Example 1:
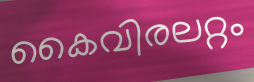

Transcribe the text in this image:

കൈവിരലറ്റം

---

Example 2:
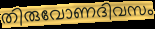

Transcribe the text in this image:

തിരുവോണദിവസം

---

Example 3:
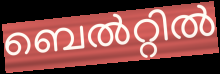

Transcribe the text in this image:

ബെൽറ്റിൽ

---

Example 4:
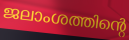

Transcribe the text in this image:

ജലാംശത്തിന്റെ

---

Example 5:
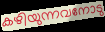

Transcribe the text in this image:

കഴിയുന്നവനോടു